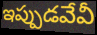
ఇప్పుడవేవీ